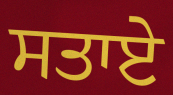
ਸਤਾਏ